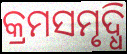
କ୍ରମସମୃଦ୍ଧି